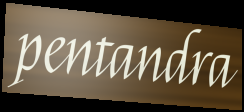
pentandra